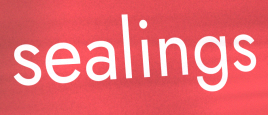
sealings